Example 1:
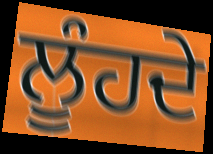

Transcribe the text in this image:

ਲੂੰਹਦੇ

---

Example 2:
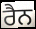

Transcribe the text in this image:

ਰੈਨ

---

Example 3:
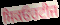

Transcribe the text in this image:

ਸਿਕਓਰਟੀਜ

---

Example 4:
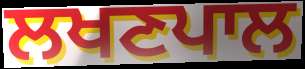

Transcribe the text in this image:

ਲਖਣਪਾਲ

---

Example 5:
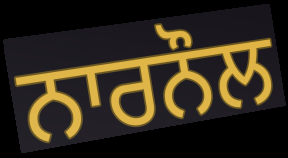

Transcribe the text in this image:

ਨਾਰਨੌਲ